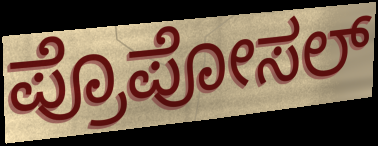
ಪ್ರೊಪೋಸಲ್